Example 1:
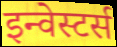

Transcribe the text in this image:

इन्वेस्टर्स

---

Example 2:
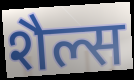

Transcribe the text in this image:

शैल्स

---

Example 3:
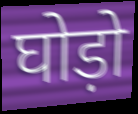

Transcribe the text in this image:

घोड़ो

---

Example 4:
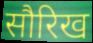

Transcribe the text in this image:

सौरिख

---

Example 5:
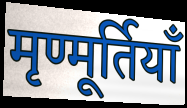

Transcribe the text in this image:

मृण्मूर्तियाँ